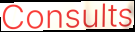
Consults